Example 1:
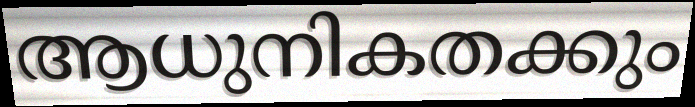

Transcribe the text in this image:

ആധുനികതക്കും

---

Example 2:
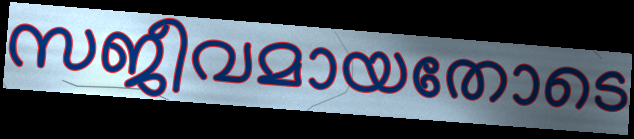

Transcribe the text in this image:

സജീവമായതോടെ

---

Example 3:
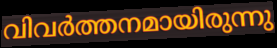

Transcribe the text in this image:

വിവർത്തനമായിരുന്നു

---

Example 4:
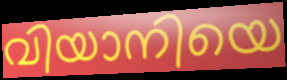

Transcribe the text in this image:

വിയാനിയെ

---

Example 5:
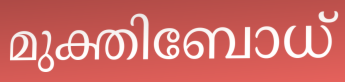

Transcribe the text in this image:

മുക്തിബോധ്